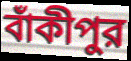
বাঁকীপুর